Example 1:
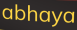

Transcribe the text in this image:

abhaya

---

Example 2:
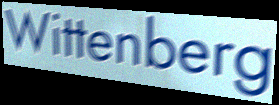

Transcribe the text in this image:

Wittenberg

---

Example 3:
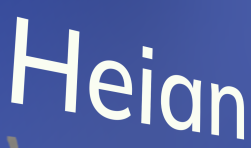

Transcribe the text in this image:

Heian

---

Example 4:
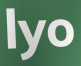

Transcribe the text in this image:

lyo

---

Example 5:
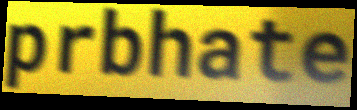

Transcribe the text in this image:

prbhate